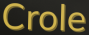
Crole